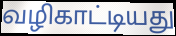
வழிகாட்டியது